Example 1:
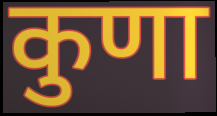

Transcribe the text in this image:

कुणा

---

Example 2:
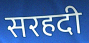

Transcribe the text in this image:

सरहदी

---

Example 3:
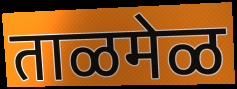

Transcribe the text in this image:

ताळमेळ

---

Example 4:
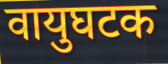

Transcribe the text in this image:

वायुघटक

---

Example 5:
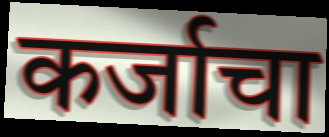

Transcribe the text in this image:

कर्जाचा